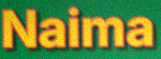
Naima